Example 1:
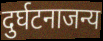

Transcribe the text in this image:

दुर्घटनाजन्य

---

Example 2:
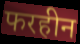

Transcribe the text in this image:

फरहीन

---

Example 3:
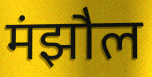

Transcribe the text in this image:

मंझौल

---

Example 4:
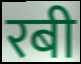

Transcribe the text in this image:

रबी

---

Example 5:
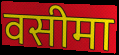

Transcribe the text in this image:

वसीमा